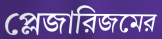
প্লেজারিজমের